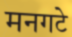
मनगटे